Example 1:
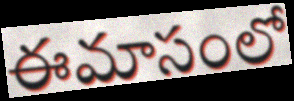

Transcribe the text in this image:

ఈమాసంలో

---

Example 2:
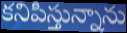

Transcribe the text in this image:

కనిపిస్తున్నాను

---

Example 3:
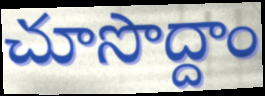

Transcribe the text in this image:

చూసొద్దాం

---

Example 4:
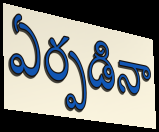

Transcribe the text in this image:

ఏర్పడినా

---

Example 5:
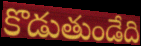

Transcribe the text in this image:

కొడుతుండేది